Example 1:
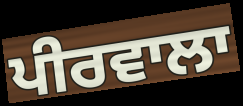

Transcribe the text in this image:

ਪੀਰਵਾਲਾ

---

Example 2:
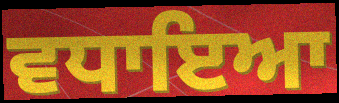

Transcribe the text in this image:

ਵਧਾਇਆ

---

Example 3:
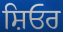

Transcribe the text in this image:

ਸ਼ਿਓਰ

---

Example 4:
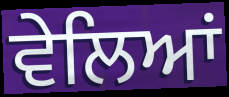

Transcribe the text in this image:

ਵੇਲਿਆਂ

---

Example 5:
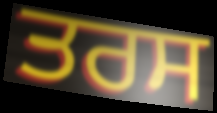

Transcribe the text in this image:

ਤਰਸ